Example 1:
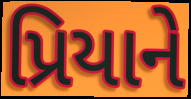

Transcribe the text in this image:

પ્રિયાને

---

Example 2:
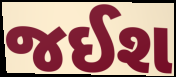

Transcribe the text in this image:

જઈશ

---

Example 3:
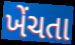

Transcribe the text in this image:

ખેંચતા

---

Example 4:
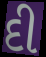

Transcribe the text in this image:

દી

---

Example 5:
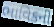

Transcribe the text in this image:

ભાવિકની